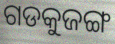
ଗଡକୁଜଙ୍ଗ